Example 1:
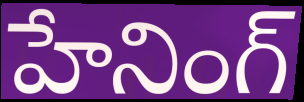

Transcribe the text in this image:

హేనింగ్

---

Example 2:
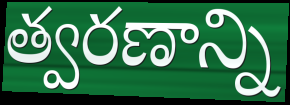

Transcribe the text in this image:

త్వరణాన్ని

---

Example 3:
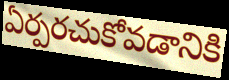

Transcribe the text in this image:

ఏర్పరచుకోవడానికి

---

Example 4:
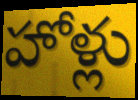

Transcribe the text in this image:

హోళ్లు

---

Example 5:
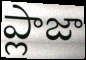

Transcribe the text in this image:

ప్లాజా